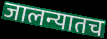
जालन्यातच